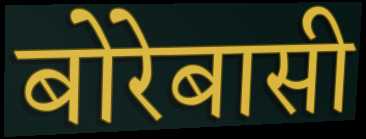
बोरेबासी